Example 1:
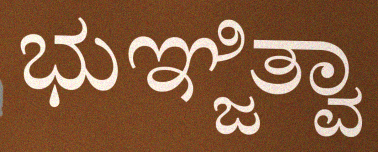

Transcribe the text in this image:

ಭುಞ್ಜಿತ್ವಾ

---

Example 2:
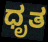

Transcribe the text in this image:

ಧೃತ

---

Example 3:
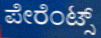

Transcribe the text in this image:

ಪೇರೆಂಟ್ಸ್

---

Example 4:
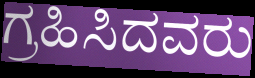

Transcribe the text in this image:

ಗ್ರಹಿಸಿದವರು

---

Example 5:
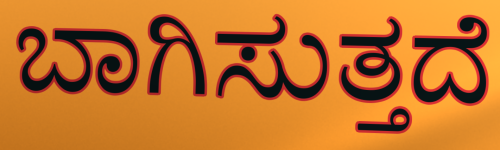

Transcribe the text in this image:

ಬಾಗಿಸುತ್ತದೆ